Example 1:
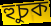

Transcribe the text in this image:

হুচুক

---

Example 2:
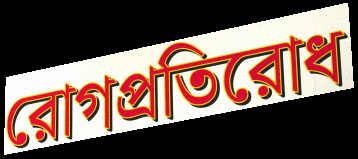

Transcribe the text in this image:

রোগপ্রতিরোধ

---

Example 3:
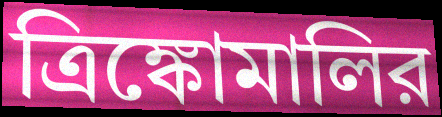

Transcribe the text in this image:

ত্রিঙ্কোমালির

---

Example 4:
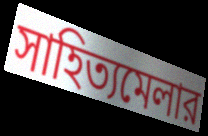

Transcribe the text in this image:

সাহিত্যমেলার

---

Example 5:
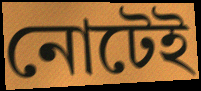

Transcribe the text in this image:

নোটেই